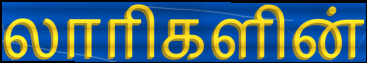
லாரிகளின்